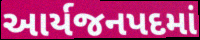
આર્યજનપદમાં